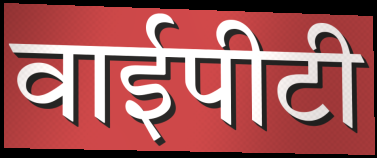
वाईपीटी